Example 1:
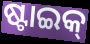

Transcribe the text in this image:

ଷ୍ଟାଇକ୍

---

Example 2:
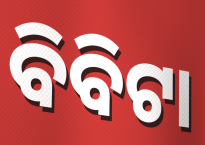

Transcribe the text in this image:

ବିବିଟା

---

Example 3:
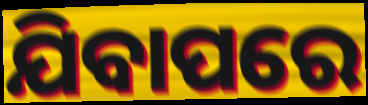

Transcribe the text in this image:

ଯିବାପରେ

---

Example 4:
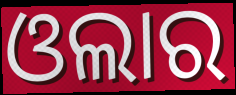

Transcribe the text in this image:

ଓଲାର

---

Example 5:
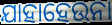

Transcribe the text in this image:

ଯାହାହେଉନା